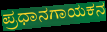
ಪ್ರಧಾನಗಾಯಕನ